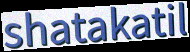
shatakatil